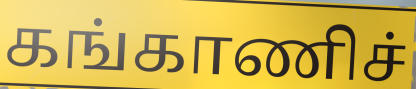
கங்காணிச்